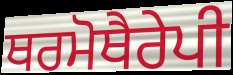
ਥਰਮੋਥੈਰੇਪੀ